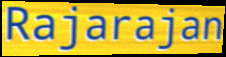
Rajarajan